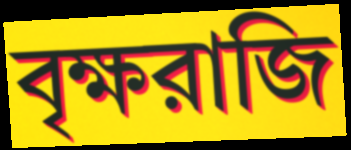
বৃক্ষরাজি